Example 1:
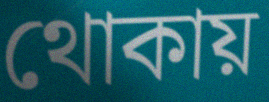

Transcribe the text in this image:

থোকায়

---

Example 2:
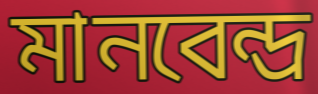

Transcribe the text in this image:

মানবেন্দ্র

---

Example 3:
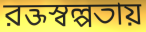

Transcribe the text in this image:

রক্তস্বল্পতায়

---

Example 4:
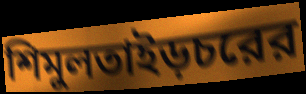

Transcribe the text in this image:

শিমুলতাইড়চরের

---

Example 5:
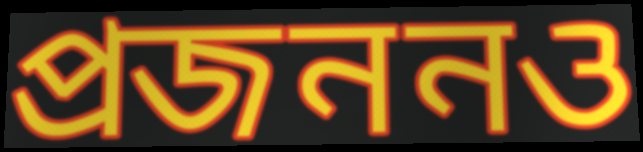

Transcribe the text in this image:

প্রজননও